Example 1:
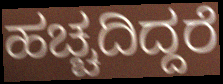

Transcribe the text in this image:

ಹಚ್ಚದಿದ್ದರೆ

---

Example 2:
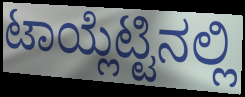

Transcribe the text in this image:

ಟಾಯ್ಲೆಟ್ಟಿನಲ್ಲಿ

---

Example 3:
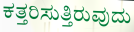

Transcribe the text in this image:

ಕತ್ತರಿಸುತ್ತಿರುವುದು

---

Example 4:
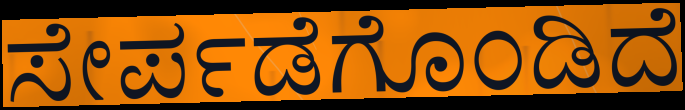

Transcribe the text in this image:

ಸೇರ್ಪಡೆಗೊಂಡಿದೆ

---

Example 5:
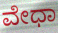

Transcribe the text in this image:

ವೇಧಾ